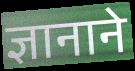
ज्ञानाने